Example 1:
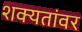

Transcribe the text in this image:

शक्यतांवर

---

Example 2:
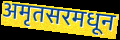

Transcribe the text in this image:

अमृतसरमधून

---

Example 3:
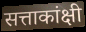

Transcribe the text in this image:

सत्ताकांक्षी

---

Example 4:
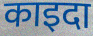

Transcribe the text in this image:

काइदा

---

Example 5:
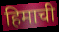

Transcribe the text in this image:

हिमाची